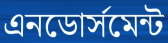
এনডোর্সমেন্ট